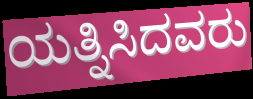
ಯತ್ನಿಸಿದವರು